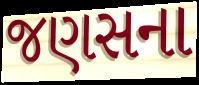
જણસના